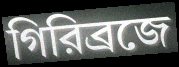
গিরিব্রজে